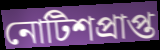
নোটিশপ্রাপ্ত